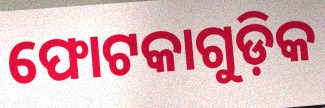
ଫୋଟକାଗୁଡ଼ିକ